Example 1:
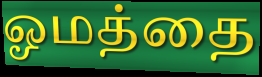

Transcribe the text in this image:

ஓமத்தை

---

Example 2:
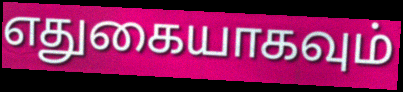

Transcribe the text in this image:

எதுகையாகவும்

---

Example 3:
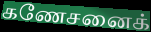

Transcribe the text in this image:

கணேசனைக்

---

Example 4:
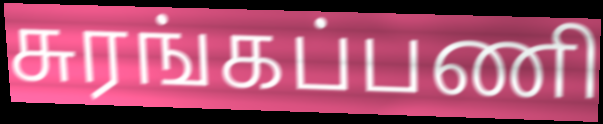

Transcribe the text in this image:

சுரங்கப்பணி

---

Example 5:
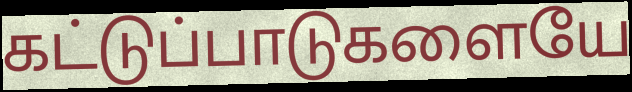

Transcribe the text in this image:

கட்டுப்பாடுகளையே